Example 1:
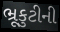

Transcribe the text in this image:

ભ્રૂકુટીની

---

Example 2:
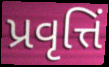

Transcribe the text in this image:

પ્રવૃત્તિં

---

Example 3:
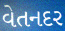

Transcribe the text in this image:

વેતનદર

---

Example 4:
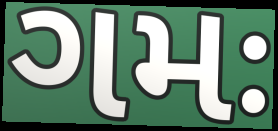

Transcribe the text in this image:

ગમઃ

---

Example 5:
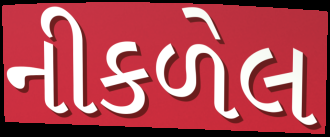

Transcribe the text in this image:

નીકળેલ